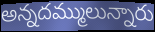
అన్నదమ్ములున్నారు